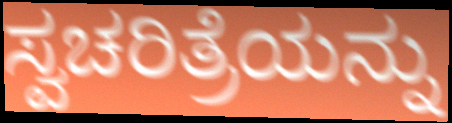
ಸ್ವಚರಿತ್ರೆಯನ್ನು